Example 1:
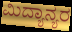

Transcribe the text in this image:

ಮಿದ್ಯಾನ್ಯರ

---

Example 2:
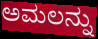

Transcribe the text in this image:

ಅಮಲನ್ನು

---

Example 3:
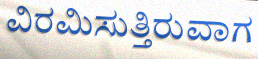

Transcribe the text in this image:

ವಿರಮಿಸುತ್ತಿರುವಾಗ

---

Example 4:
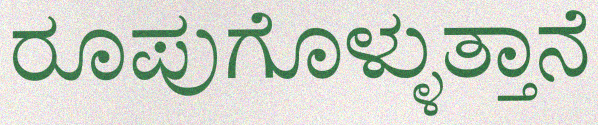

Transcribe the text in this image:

ರೂಪುಗೊಳ್ಳುತ್ತಾನೆ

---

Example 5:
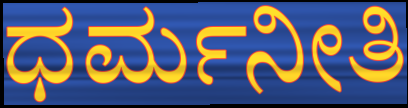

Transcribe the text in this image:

ಧರ್ಮನೀತಿ